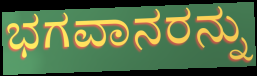
ಭಗವಾನರನ್ನು